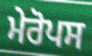
ਮੇਰੋਪਸ